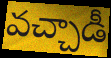
వచ్చాడీ